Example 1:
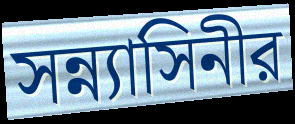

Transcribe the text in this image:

সন্ন্যাসিনীর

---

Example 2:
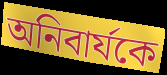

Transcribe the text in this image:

অনিবার্যকে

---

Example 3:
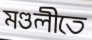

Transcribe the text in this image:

মণ্ডলীতে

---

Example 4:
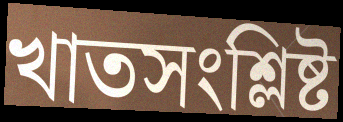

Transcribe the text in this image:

খাতসংশ্লিষ্ট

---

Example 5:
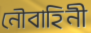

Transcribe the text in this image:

নৌবাহিনী